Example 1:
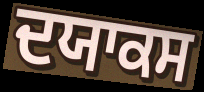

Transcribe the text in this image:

ਦਯਾਕਸ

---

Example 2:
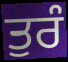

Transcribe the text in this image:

ਤੁਰੰ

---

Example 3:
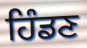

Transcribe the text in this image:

ਹਿੰਡਣ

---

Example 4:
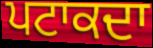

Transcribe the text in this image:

ਪਟਾਕਦਾ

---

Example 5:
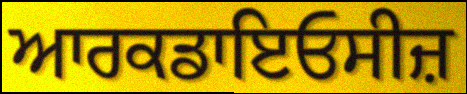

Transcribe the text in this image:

ਆਰਕਡਾਇਓਸੀਜ਼